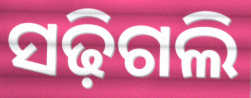
ସଢ଼ିଗଲି